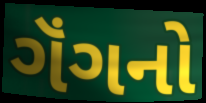
ગૅંગનો